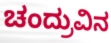
ಚಂದ್ರುವಿನ